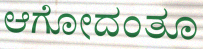
ಆಗೋದಂತೂ